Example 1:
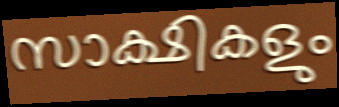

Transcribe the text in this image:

സാക്ഷികളും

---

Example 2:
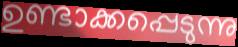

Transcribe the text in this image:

ഉണ്ടാക്കപ്പെടുന്നു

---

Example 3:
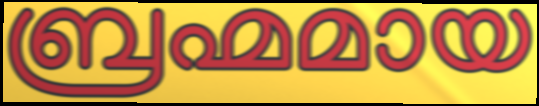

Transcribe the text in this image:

ബ്രഹ്മമായ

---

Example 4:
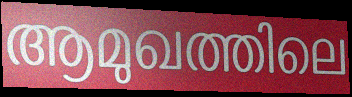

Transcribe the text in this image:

ആമുഖത്തിലെ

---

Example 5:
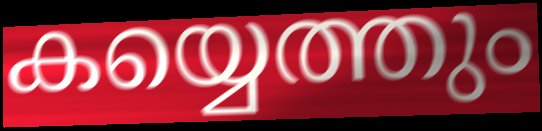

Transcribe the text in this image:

കയ്യെത്തും